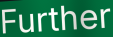
Further